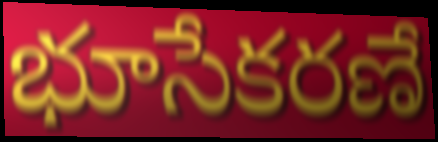
భూసేకరణే